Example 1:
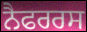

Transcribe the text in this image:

ਨੈਫਰਰਸ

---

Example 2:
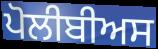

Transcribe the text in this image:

ਪੋਲੀਬੀਅਸ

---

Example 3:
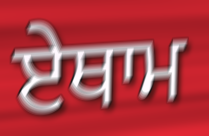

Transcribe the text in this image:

ਏਥਾਮ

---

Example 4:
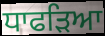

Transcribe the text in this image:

ਧਾਫੜਿਆ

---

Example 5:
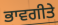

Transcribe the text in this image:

ਭਾਵਗੀਤੇ